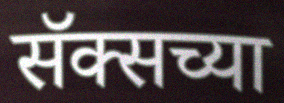
सॅक्सच्या